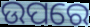
ଉପରେ